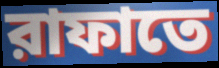
রাফাতে